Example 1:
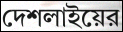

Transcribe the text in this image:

দেশলাইয়ের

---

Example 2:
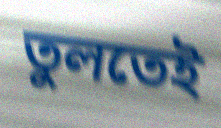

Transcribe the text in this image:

তুলতেই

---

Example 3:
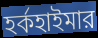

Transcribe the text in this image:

হর্কহাইমার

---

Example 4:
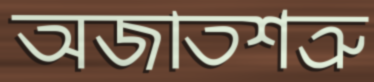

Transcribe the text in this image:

অজাতশত্রু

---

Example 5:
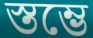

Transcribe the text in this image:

স্তম্ভে